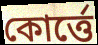
কোর্ত্তে